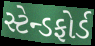
સ્ટેન્ડફોર્ડ